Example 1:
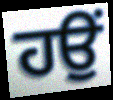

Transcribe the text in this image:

ਹਉਂ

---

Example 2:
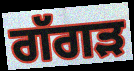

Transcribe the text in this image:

ਗੱਗੜ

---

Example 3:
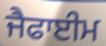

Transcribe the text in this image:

ਜੈਫਾਈਮ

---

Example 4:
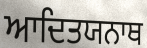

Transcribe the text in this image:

ਆਦਿਤਯਨਾਥ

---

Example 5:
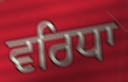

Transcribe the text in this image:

ਵਰਿਧਾ